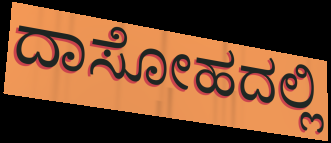
ದಾಸೋಹದಲ್ಲಿ